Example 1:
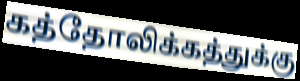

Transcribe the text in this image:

கத்தோலிக்கத்துக்கு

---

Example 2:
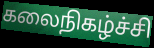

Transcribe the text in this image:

கலைநிகழ்ச்சி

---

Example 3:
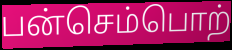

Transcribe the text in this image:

பன்செம்பொற்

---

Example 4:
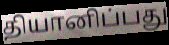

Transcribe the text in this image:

தியானிப்பது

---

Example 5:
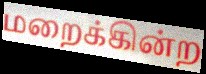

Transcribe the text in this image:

மறைக்கின்ற